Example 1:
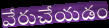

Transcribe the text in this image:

వేరుచేయడం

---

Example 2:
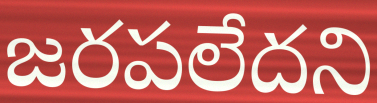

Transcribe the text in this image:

జరపలేదని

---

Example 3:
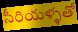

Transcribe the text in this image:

సీరియళ్ళతో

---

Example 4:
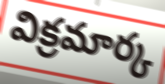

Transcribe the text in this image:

విక్రమార్క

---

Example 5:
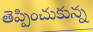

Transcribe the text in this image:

తెప్పించుకున్న